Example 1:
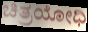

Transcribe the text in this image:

ಚಿತ್ರಯೋಧಿ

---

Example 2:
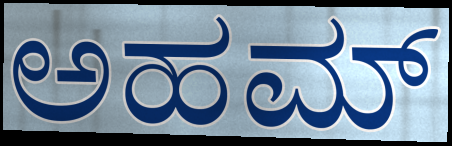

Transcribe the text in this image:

ಅಹಮ್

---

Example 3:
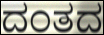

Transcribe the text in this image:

ದಂತದ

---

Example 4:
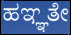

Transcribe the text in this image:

ಹಞ್ಞತೇ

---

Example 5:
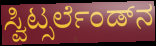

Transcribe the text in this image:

ಸ್ವಿಟ್ಸರ್ಲೆಂಡ್‌ನ